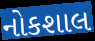
નોકશાલ